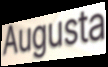
Augusta